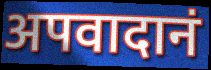
अपवादानं